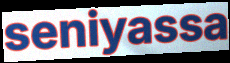
seniyassa